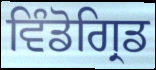
ਵਿੰਡੋਗ੍ਰਿਡ